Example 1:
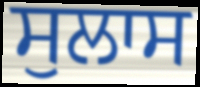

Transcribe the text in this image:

ਸੁਲਾਸ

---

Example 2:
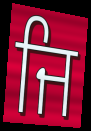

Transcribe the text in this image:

ਜਿ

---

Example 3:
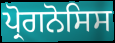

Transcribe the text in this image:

ਪ੍ਰੋਗਨੋਸਿਸ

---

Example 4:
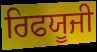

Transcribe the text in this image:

ਰਿਫਯੂਜੀ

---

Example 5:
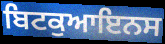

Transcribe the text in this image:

ਬਿਟਕੁਆਇਨਸ